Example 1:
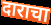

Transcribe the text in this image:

दाराचा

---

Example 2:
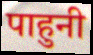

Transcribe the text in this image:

पाहुनी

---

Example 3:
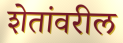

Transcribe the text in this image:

शेतांवरील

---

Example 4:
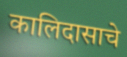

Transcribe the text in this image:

कालिदासाचे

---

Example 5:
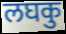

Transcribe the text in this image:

लघकु